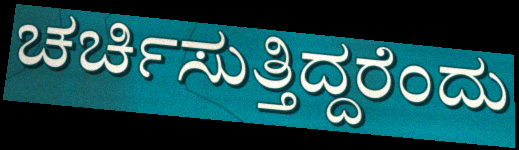
ಚರ್ಚಿಸುತ್ತಿದ್ದರೆಂದು